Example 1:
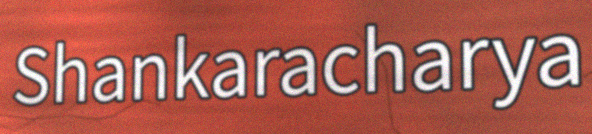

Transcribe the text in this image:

Shankaracharya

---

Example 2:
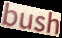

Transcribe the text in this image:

bush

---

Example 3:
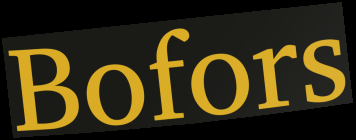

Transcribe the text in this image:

Bofors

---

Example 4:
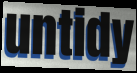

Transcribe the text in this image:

untidy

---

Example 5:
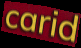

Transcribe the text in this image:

carid